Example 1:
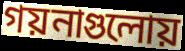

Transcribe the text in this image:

গয়নাগুলোয়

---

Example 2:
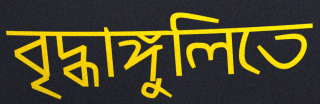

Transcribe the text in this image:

বৃদ্ধাঙ্গুলিতে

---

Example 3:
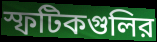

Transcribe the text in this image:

স্ফটিকগুলির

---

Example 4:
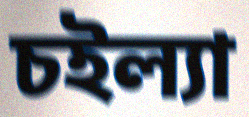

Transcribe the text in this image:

চইল্যা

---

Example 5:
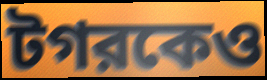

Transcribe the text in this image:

টগরকেও